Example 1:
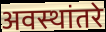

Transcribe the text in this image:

अवस्थांतरे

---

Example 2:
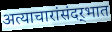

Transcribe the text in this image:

अत्याचारांसंदर्भात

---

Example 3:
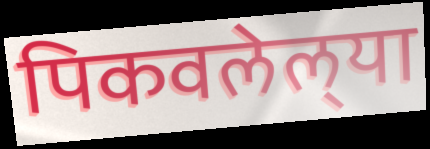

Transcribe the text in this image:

पिकवलेल्या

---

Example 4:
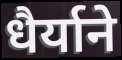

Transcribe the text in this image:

धैर्याने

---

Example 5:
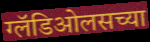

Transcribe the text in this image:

ग्लॅडिओलसच्या